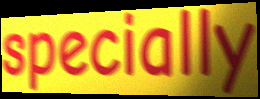
specially